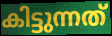
കിട്ടുന്നത്